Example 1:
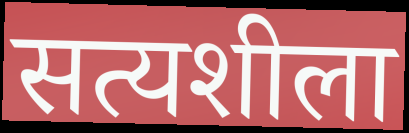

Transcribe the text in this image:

सत्यशीला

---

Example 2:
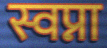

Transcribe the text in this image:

स्वप्ना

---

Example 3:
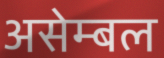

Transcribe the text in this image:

असेम्बल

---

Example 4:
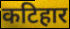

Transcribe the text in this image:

कटिहार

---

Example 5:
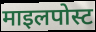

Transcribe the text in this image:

माइलपोस्ट